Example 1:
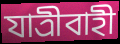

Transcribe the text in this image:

যাত্রীবাহী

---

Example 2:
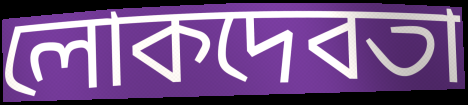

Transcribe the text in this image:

লোকদেবতা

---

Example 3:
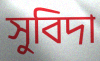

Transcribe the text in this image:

সুবিদা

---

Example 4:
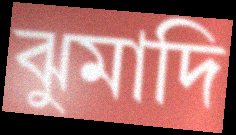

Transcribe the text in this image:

ঝুমাদি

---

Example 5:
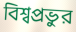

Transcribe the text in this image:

বিশ্বপ্রভুর